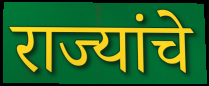
राज्यांचे